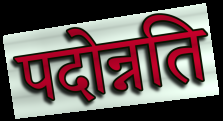
पदोन्नति